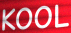
KOOL